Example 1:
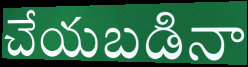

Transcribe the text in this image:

చేయబడినా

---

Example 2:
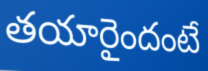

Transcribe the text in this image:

తయారైందంటే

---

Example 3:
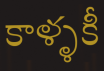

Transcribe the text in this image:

కాళ్ళకీ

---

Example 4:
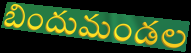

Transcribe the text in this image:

బిందుమండల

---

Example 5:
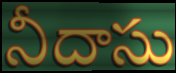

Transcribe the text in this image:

నీదాసు